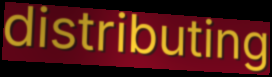
distributing